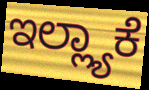
ಇಲ್ಲ್ಯಾಕೆ